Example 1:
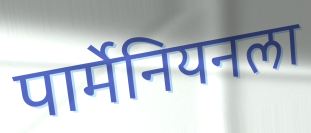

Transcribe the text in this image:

पार्मेनियनला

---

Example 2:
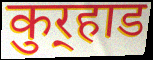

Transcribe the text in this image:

कुर्हाड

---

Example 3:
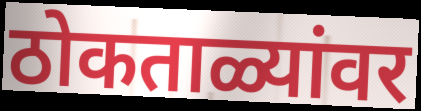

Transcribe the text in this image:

ठोकताळ्यांवर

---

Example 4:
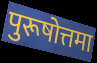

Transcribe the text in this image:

पुरूषोत्तमा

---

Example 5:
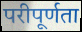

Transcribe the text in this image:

परीपूर्णता